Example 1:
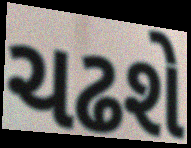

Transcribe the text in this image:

ચઢશે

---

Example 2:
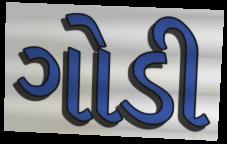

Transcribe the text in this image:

ગોડી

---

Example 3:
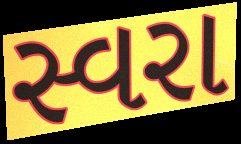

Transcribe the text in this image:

સ્વરા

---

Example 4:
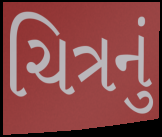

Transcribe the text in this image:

ચિત્રનું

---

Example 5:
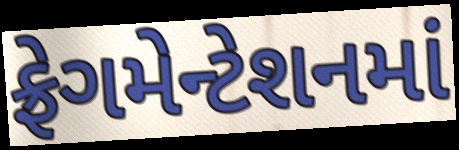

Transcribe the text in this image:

ફ્રેગમેન્ટેશનમાં